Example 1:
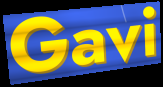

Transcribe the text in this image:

Gavi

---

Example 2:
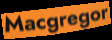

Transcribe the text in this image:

Macgregor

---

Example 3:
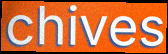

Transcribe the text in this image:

chives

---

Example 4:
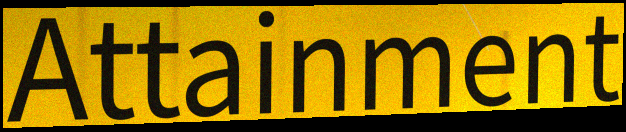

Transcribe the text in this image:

Attainment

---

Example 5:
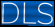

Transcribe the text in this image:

DLS